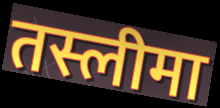
तस्लीमा